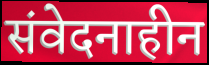
संवेदनाहीन